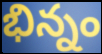
భిన్నం